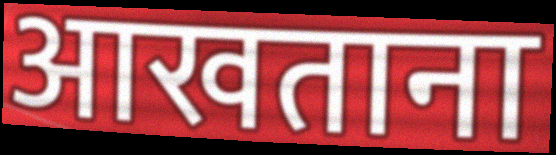
आखताना